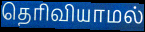
தெரிவியாமல்